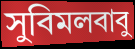
সুবিমলবাবু